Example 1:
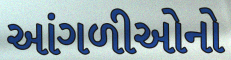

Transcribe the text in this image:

આંગળીઓનો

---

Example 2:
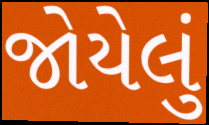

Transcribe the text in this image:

જોયેલું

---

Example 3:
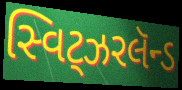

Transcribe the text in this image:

સ્વિટ્ઝરલૅન્ડ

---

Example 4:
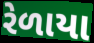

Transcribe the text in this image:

રેળાયા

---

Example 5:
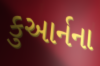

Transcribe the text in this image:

કુઆર્નના